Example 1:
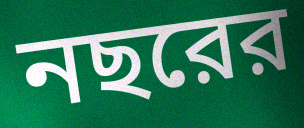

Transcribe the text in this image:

নছরের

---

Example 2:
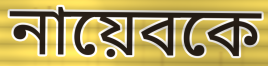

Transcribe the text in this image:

নায়েবকে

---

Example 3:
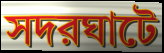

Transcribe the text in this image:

সদরঘাটে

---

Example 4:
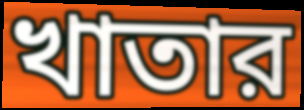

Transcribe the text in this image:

খাতার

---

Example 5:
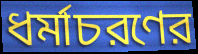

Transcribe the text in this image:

ধর্মাচরণের